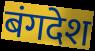
बंगदेश